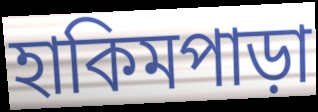
হাকিমপাড়া